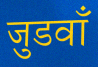
जुडवाँ